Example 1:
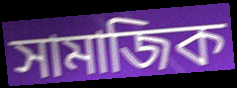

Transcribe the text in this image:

সামাজিক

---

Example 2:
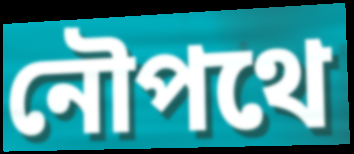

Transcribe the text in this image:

নৌপথে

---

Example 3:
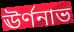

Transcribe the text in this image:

ঊর্ণনাভ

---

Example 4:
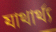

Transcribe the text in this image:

যাথার্থ্য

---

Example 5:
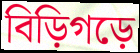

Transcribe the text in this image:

বিড়িগড়ে